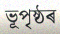
ভূপৃষ্ঠৰ